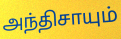
அந்திசாயும்